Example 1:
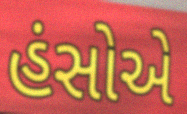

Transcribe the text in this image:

હંસોએ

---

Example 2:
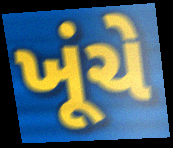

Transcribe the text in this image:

ખૂંચે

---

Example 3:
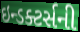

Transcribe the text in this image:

ઇન્ડક્ટર્સની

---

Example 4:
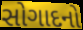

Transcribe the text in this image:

સોગાદનો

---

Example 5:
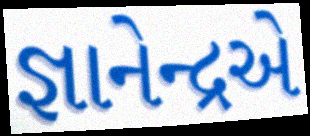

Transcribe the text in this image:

જ્ઞાનેન્દ્રએ